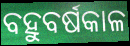
ବହୁବର୍ଷକାଳ